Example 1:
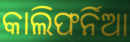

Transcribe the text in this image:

କାଲିଫର୍ନିଆ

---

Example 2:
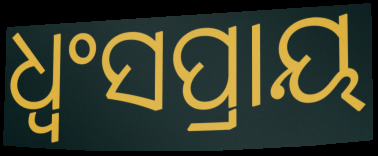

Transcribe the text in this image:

ଧ୍ୱଂସପ୍ରାୟ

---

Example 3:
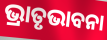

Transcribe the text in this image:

ଭ୍ରାତୃଭାବନା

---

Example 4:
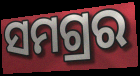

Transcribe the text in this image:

ସମଗ୍ରର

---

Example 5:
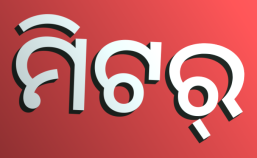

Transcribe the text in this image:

ମିଟର୍